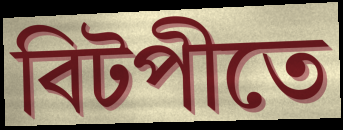
বিটপীতে